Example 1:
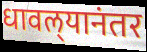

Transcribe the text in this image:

धावल्यानंतर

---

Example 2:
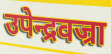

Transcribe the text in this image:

उपेन्द्रवज्रा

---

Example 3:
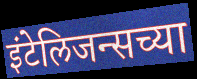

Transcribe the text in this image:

इंटेलिजन्सच्या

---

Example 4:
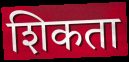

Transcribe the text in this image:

शिकता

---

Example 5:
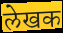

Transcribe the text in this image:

लेखक